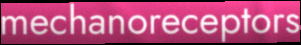
mechanoreceptors